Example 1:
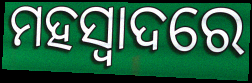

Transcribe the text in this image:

ମହସ୍ୱାଦରେ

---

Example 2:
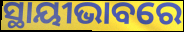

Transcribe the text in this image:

ସ୍ଥାୟୀଭାବରେ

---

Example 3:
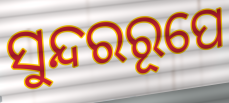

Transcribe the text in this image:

ସୁନ୍ଦରରୂପେ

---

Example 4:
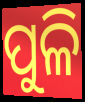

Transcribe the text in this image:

ପୁଳି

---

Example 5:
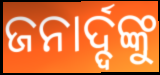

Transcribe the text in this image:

ଜନାର୍ଦ୍ଦଙ୍କୁ